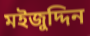
মইজুদ্দিন